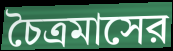
চৈত্রমাসের